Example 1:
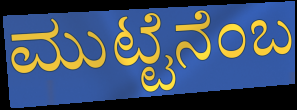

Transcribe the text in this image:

ಮುಟ್ಟೆನೆಂಬ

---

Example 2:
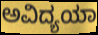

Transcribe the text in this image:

ಅವಿದ್ಯಯಾ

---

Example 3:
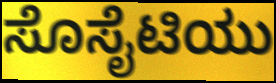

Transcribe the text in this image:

ಸೊಸೈಟಿಯು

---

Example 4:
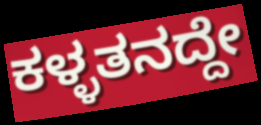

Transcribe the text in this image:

ಕಳ್ಳತನದ್ದೇ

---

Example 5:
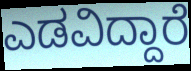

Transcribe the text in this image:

ಎಡವಿದ್ದಾರೆ